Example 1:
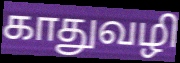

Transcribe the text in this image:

காதுவழி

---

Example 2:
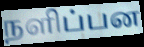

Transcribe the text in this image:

நளிப்பன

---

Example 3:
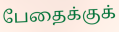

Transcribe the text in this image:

பேதைக்குக்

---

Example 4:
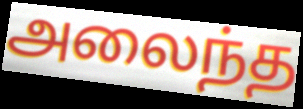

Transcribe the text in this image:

அலைந்த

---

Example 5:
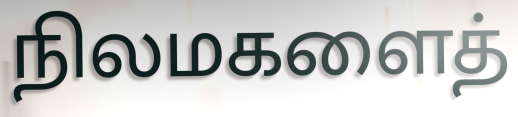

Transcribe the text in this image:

நிலமகளைத்